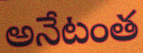
అనేటంత